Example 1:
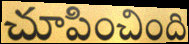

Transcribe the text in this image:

చూపించింది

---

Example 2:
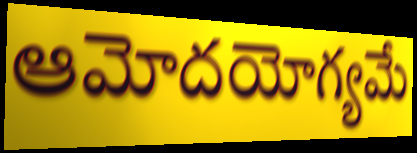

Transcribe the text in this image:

ఆమోదయోగ్యమే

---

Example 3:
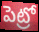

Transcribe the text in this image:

పెట్రో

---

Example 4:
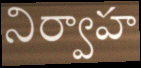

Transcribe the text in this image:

నిర్వాహ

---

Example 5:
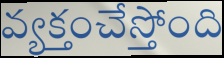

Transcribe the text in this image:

వ్యక్తంచేస్తోంది